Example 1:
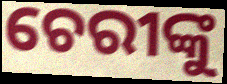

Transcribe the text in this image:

ଚେରୀଙ୍କୁ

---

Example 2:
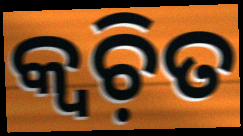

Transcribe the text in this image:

କ୍ୱଚ଼ିତ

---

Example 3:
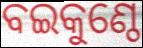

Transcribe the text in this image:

ବଇକୁଣ୍ଠେ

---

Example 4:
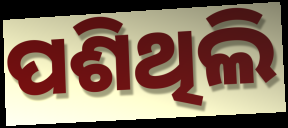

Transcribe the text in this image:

ପଶିଥିଲି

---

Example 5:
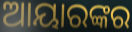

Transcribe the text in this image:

ଆୟାରଙ୍କର